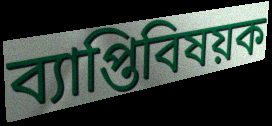
ব্যাপ্তিবিষয়ক